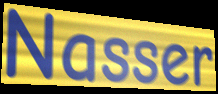
Nasser